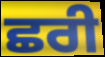
ਛਰੀ